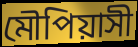
মৌপিয়াসী